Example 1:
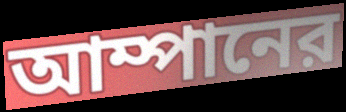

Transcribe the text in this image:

আম্পানের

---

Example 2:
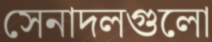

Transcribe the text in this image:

সেনাদলগুলো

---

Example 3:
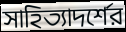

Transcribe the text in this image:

সাহিত্যাদর্শের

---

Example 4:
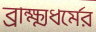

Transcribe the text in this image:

ব্রাক্ষ্মধর্মের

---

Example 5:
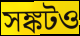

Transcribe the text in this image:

সঙ্কটও